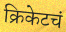
क्रिकेटचं